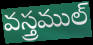
వస్త్రముల్